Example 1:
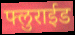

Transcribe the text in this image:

फ्लुराईड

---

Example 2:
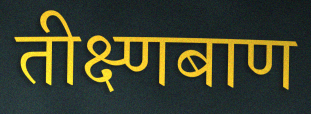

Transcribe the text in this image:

तीक्ष्णबाण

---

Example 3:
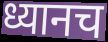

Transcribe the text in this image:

ध्यानच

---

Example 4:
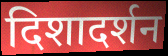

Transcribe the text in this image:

दिशादर्शन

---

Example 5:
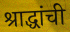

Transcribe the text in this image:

श्राद्धांची